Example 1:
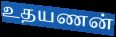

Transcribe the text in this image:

உதயணன்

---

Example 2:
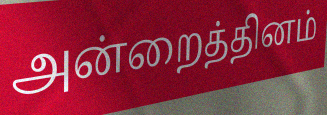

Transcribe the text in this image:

அன்றைத்தினம்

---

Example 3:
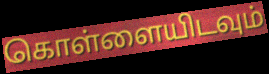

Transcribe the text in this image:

கொள்ளையிடவும்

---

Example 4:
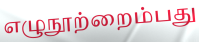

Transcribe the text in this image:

எழுநூற்றைம்பது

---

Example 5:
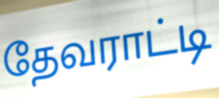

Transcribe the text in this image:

தேவராட்டி